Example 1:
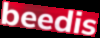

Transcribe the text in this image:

beedis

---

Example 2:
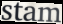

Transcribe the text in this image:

stam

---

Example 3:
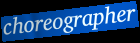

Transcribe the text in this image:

choreographer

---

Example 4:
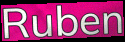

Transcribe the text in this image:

Ruben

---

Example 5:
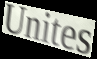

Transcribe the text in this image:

Unites